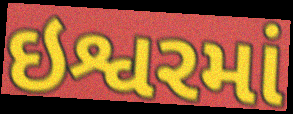
ઇશ્વરમાં